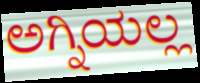
ಅಗ್ನಿಯಲ್ಲ